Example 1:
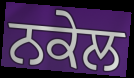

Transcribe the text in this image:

ਨਕੇਲ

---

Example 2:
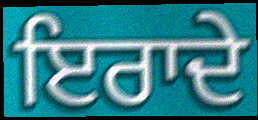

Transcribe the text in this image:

ਇਰਾਦੇ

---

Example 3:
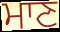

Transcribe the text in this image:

ਮਾਣ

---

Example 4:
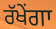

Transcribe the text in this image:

ਰੱਖੇਂਗਾ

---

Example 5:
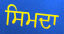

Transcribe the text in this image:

ਸਿਮਦਾ